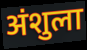
अंशुला